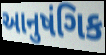
આનુષંગિક